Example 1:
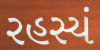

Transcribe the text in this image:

રહસ્યં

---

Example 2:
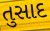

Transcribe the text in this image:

તુસાદ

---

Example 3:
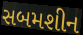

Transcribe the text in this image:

સબમશીન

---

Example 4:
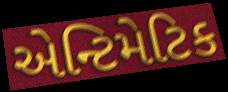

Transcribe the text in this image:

એન્ટિમેટિક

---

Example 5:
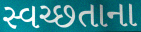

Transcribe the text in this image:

સ્વચ્છતાના